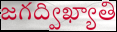
జగద్విఖ్యాతి